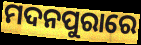
ମଦନପୁରାରେ